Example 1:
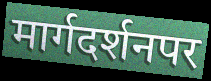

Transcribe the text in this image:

मार्गदर्शनपर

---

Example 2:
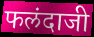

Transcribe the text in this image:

फलंदाजी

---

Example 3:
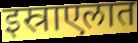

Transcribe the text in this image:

इस्राएलात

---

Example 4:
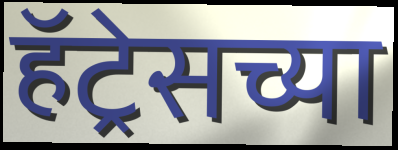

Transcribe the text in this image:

हॅट्रेसच्या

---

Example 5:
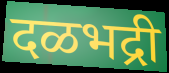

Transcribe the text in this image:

दळभद्री